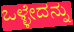
ಒಳ್ಳೇದನ್ನು